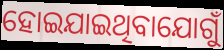
ହୋଇଯାଇଥିବାଯୋଗୁଁ